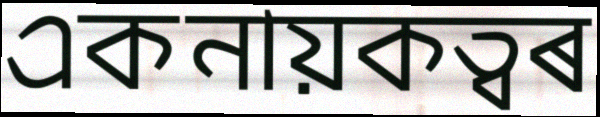
একনায়কত্বৰ